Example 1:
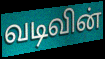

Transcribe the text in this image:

வடிவின்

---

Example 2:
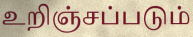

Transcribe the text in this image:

உறிஞ்சப்படும்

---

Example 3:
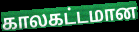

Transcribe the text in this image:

காலகட்டமான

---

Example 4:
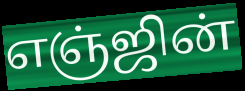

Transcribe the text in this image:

எஞ்ஜின்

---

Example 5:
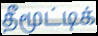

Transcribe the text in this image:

தீமூட்டிக்